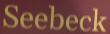
Seebeck